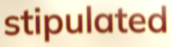
stipulated